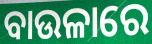
ବାଉଳାରେ